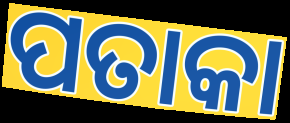
ପତାକା